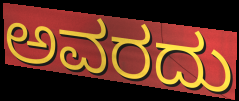
ಅವರದು